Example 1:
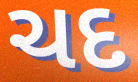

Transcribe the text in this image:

ચદ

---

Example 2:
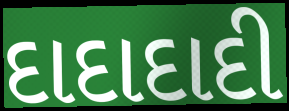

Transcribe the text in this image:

દાદાદાદી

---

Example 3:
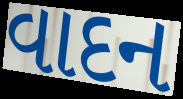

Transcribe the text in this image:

વાદન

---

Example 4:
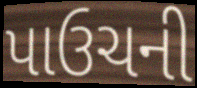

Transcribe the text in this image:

પાઉચની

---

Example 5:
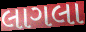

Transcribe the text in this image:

લાગલા